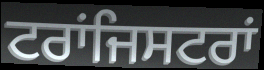
ਟਰਾਂਜਿਸਟਰਾਂ